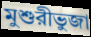
মুশুরীভুজা